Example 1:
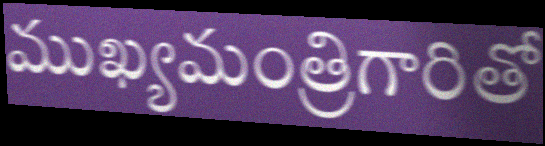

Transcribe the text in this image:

ముఖ్యమంత్రిగారితో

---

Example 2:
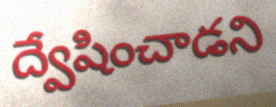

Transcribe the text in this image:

ద్వేషించాడని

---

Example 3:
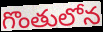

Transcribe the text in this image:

గొంతులోన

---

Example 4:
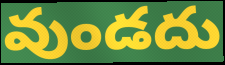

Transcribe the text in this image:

వుండదు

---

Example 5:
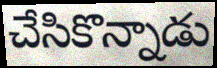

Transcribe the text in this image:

చేసికొన్నాడు